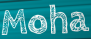
Moha